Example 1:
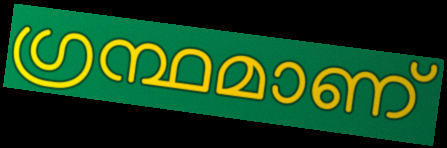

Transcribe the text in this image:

ഗ്രന്ഥമാണ്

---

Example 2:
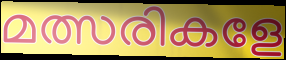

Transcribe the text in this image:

മത്സരികളേ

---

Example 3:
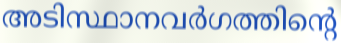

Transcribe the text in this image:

അടിസ്ഥാനവർഗത്തിന്റെ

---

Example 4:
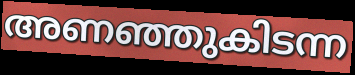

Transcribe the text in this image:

അണഞ്ഞുകിടന്ന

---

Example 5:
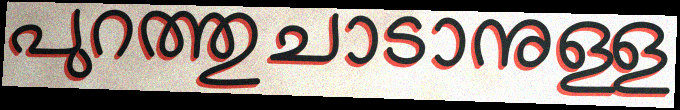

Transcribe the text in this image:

പുറത്തുചാടാനുള്ള